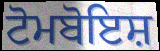
ਟੋਮਬੋਇਸ਼